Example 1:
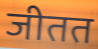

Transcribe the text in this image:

जीतत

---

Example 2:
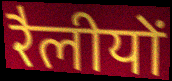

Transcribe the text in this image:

रैलीयों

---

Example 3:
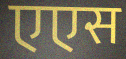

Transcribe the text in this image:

एएस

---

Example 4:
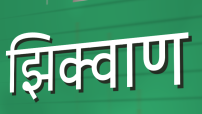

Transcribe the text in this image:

झिक्वाण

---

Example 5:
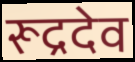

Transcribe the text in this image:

रूद्रदेव